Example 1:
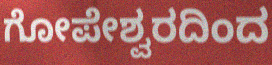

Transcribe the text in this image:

ಗೋಪೇಶ್ವರದಿಂದ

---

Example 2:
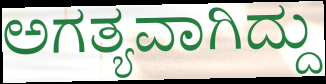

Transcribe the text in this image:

ಅಗತ್ಯವಾಗಿದ್ದು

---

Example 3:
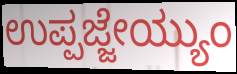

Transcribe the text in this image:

ಉಪ್ಪಜ್ಜೇಯ್ಯುಂ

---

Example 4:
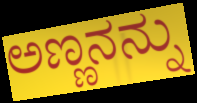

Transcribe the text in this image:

ಅಣ್ಣನನ್ನು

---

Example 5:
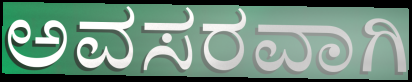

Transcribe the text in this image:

ಅವಸರವಾಗಿ